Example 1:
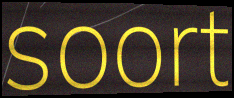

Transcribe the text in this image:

soort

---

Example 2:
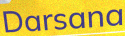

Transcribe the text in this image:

Darsana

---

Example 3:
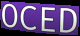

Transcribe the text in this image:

OCED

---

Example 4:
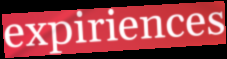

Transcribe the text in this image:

expiriences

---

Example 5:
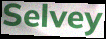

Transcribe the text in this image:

Selvey